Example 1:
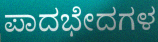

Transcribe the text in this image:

ಪಾದಭೇದಗಳ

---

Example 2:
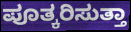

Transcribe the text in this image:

ಪೂತ್ಕರಿಸುತ್ತಾ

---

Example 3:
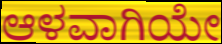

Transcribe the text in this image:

ಆಳವಾಗಿಯೇ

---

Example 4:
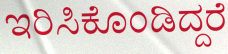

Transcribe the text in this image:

ಇರಿಸಿಕೊಂಡಿದ್ದರೆ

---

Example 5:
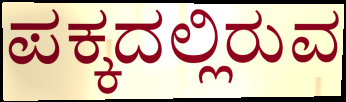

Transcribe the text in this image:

ಪಕ್ಕದಲ್ಲಿರುವ